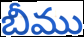
బీము